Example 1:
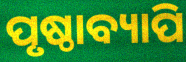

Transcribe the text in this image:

ପୃଷ୍ଠାବ୍ୟାପି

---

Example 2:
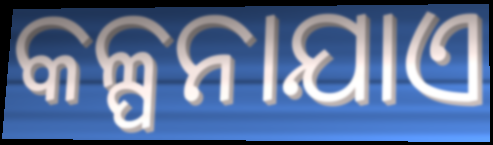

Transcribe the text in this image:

କଳ୍ପନାଯାଏ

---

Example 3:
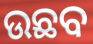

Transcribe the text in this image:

ଉଛବ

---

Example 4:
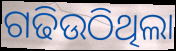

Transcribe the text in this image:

ଗଢିଉଠିଥିଲା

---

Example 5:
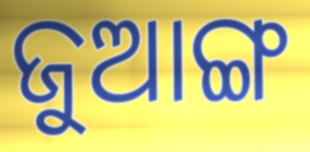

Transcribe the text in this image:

ଜୁଆଙ୍ଗ